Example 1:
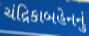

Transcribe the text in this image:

ચંદ્રિકાબહેનનું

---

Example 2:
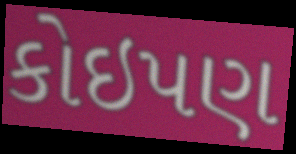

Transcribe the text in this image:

કોઇપણ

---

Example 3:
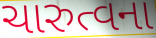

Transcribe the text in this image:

ચારુત્વના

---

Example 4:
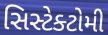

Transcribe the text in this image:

સિસ્ટેક્ટોમી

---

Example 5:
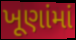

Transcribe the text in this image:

ખૂણાંમાં